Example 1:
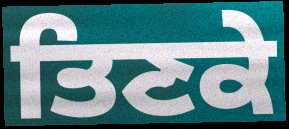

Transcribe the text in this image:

ਤਿਣਕੇ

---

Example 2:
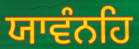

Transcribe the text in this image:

ਯਾਵੰਨਹਿ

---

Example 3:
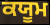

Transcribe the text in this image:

ਕਯੂਮ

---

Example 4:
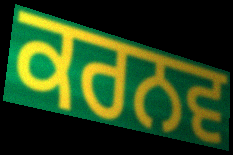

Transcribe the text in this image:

ਕਰਨਵ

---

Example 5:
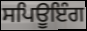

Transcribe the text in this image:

ਸਪਿਊਇੰਗ